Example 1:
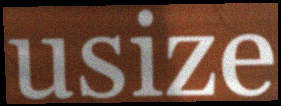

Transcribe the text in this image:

usize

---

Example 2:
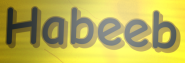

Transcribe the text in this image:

Habeeb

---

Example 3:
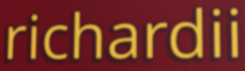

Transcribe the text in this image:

richardii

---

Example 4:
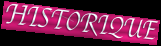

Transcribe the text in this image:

HISTORIQUE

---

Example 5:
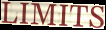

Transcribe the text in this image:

LIMITS